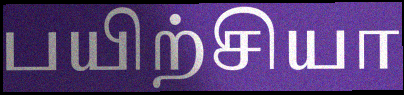
பயிற்சியா